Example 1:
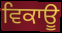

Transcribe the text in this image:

ਵਿਕਾਊ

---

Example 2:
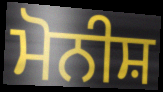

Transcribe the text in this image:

ਮੋਨੀਸ਼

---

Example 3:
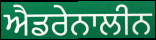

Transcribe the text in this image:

ਐਡਰੇਨਾਲੀਨ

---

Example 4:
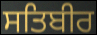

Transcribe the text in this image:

ਸਤਿਬੀਰ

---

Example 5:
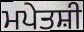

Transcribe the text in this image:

ਮਪੇਤਸ਼ੀ